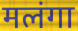
मलंगा